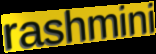
rashmini